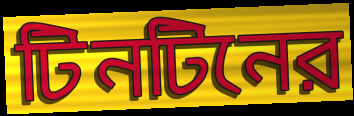
টিনটিনের